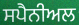
ਸਪੈਨੀਅਲ